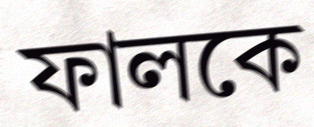
ফালকে